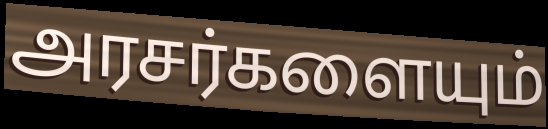
அரசர்களையும்